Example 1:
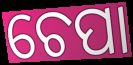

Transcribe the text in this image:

ଚେପା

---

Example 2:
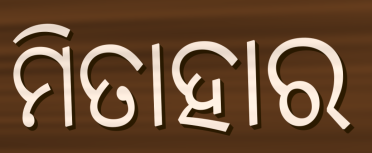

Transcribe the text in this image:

ମିତାହାର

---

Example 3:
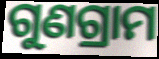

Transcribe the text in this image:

ଗୁଣଗ୍ରାମ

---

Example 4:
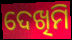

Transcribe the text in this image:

ଦେଖିମି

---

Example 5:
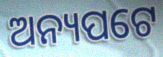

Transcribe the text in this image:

ଅନ୍ୟପଟେ